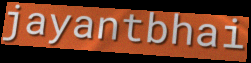
jayantbhai